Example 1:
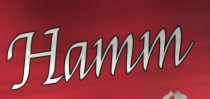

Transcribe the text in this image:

Hamm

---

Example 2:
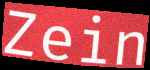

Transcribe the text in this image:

Zein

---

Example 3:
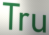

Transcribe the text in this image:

Tru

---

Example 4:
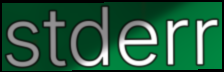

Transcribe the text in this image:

stderr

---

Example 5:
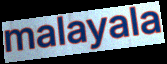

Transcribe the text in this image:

malayala